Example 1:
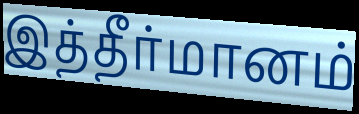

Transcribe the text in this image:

இத்தீர்மானம்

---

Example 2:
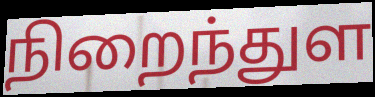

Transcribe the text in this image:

நிறைந்துள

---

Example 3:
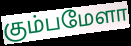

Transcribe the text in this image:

கும்பமேளா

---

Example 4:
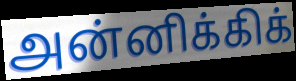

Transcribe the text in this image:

அன்னிக்கிக்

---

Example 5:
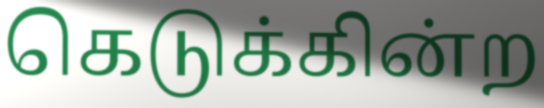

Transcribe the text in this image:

கெடுக்கின்ற